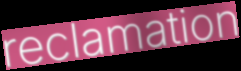
reclamation